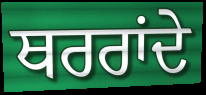
ਥਰਰਾਂਦੇ